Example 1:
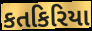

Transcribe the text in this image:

કતકિરિયા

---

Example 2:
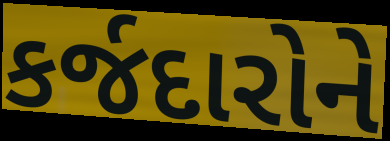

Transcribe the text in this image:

કર્જદારોને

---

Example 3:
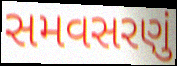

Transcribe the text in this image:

સમવસરણું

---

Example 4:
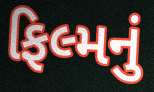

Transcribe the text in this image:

ફિલ્મનું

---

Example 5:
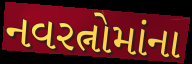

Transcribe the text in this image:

નવરત્નોમાંના